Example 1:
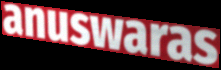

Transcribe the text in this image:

anuswaras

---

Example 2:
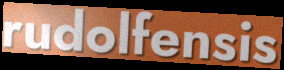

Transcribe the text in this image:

rudolfensis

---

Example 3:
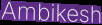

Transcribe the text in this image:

Ambikesh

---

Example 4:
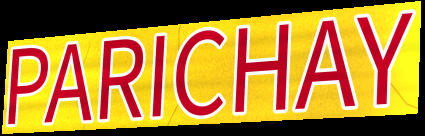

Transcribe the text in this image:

PARICHAY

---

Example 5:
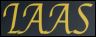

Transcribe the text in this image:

IAAS